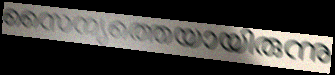
സൈന്യത്തെയായിരുന്നു